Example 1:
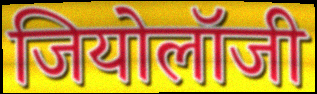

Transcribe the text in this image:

जियोलॉजी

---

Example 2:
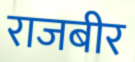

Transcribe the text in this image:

राजबीर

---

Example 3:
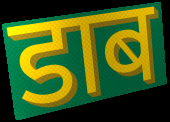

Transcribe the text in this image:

डाब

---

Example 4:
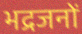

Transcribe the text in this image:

भद्रजनों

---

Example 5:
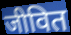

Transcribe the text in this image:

जीवित